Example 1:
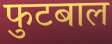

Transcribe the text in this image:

फुटबाल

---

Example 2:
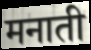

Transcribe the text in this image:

मनाती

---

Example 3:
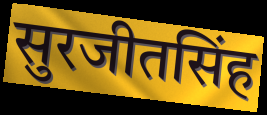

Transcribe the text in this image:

सुरजीतसिंह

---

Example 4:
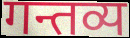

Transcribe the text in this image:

गन्तव्य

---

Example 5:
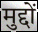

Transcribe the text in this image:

मुद्दों